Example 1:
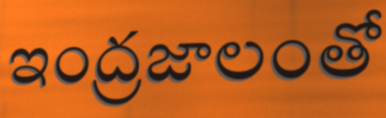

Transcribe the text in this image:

ఇంద్రజాలంతో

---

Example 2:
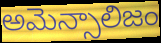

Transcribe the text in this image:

అమెన్సాలిజం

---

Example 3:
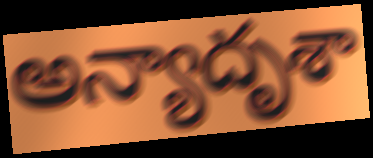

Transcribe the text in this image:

అన్యాదృశా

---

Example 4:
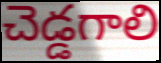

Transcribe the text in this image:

చెడ్డగాలి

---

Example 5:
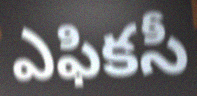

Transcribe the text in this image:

ఎఫికసీ